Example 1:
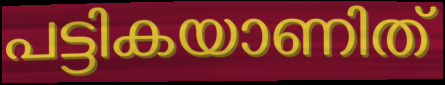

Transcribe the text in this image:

പട്ടികയാണിത്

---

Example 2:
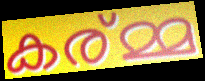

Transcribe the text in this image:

കര്മ്മ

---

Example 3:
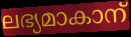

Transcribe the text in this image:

ലഭ്യമാകാന്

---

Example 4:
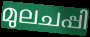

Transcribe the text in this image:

മുലചപ്പി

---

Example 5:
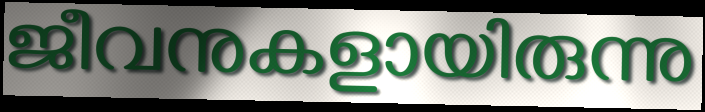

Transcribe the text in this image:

ജീവനുകളായിരുന്നു